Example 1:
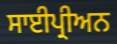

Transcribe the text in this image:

ਸਾਈਪ੍ਰੀਅਨ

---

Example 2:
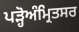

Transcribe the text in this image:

ਪੜ੍ਹੋਅੰਮ੍ਰਿਤਸਰ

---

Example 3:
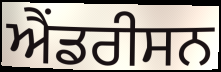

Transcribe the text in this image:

ਐਂਡਰੀਸਨ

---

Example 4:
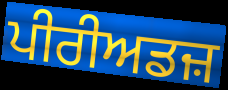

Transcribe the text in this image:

ਪੀਰੀਅਡਜ਼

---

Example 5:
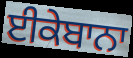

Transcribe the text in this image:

ਈਕੇਬਾਨਾ